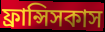
ফ্রান্সিসকাস